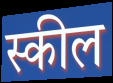
स्‍कील